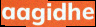
aagidhe